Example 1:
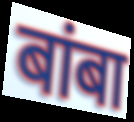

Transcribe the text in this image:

बांबा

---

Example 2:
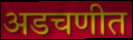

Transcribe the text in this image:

अडचणीत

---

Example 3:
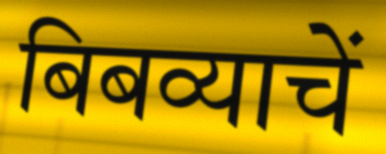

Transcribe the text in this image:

बिबव्याचें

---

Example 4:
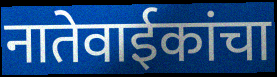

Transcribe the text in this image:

नातेवाईकांचा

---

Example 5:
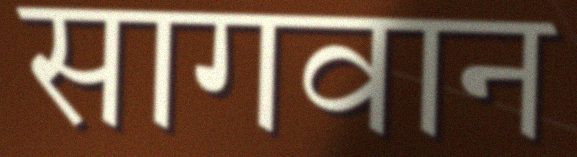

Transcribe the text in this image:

सागवान